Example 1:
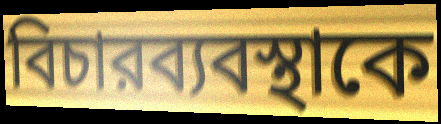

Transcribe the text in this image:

বিচারব্যবস্থাকে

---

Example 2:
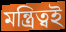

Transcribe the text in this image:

মন্ত্রিত্বই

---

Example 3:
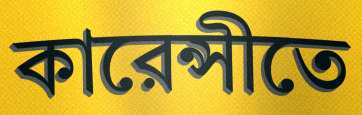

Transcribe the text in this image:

কারেন্সীতে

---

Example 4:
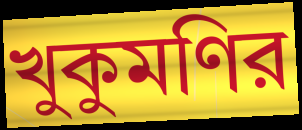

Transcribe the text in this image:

খুকুমণির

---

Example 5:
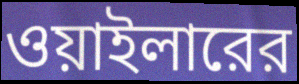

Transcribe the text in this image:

ওয়াইলারের